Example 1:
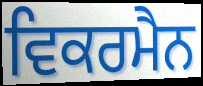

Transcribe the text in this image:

ਵਿਕਰਮੈਨ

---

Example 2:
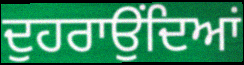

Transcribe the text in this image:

ਦੁਹਰਾਉਂਦਿਆਂ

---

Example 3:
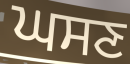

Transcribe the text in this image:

ਘਸਣ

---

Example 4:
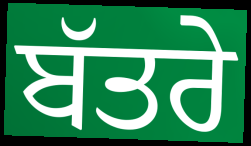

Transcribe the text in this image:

ਬੱਤਰੇ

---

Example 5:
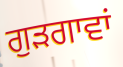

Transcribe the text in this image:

ਗੁੜਗਾਵਾਂ